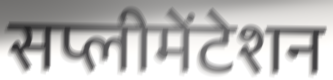
सप्लीमेंटेशन